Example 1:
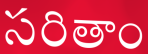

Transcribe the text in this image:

సరితాం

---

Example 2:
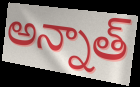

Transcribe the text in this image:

అన్నాత్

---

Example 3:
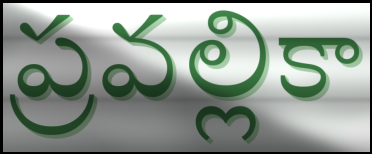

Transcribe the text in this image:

ప్రవల్లికా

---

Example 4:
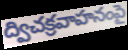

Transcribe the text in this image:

ద్విచక్రవాహనంపై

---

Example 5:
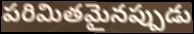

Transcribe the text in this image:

పరిమితమైనప్పుడు